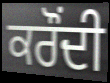
ਕਰੌਂਦੀ